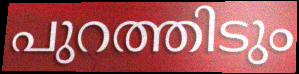
പുറത്തിടും